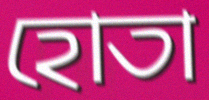
হোতা